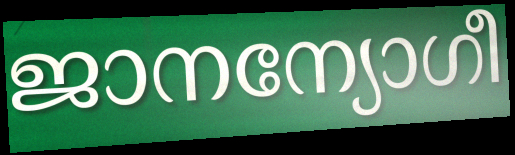
ജാനന്യോഗീ